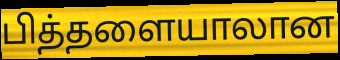
பித்தளையாலான